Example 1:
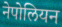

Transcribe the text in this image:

नेपोलियन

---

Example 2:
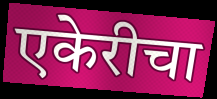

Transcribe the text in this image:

एकेरीचा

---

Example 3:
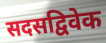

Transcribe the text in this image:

सदसद्विवेक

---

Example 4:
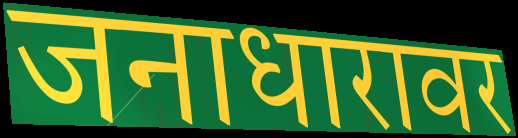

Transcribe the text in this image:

जनाधारावर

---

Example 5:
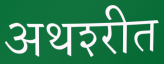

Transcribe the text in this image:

अथश्रीत